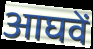
आघवें